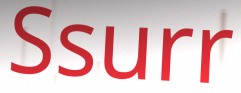
Ssurr